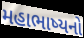
મહાભાષ્યનો